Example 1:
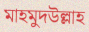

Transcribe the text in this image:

মাহমুদউল্লাহ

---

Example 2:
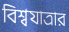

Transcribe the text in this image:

বিশ্বযাত্রার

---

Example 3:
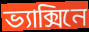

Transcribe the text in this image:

ভ্যাক্সিনে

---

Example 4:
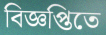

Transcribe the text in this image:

বিজ্ঞপ্তিতে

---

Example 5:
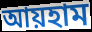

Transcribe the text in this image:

আয়হাম